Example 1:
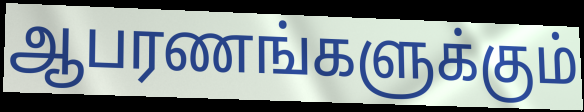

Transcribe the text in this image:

ஆபரணங்களுக்கும்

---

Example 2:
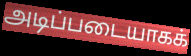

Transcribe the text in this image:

அடிப்படையாகக்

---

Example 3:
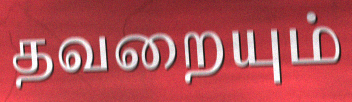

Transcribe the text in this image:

தவறையும்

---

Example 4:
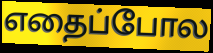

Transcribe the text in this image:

எதைப்போல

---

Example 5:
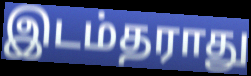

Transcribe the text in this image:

இடம்தராது